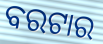
ବରଟାର